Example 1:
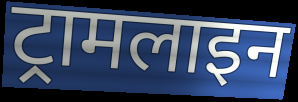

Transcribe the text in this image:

ट्रामलाइन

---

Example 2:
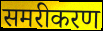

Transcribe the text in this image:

समरीकरण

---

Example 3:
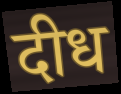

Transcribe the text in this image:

दीध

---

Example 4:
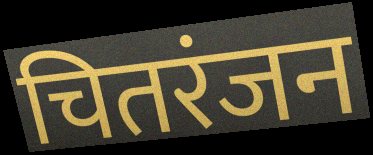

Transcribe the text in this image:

चितरंजन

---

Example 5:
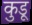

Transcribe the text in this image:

कुडू